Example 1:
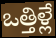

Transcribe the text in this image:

ఒత్తిళ్లే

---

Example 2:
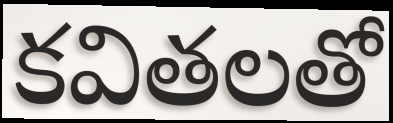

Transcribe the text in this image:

కవితలతో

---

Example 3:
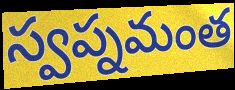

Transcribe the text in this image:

స్వప్నమంత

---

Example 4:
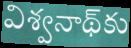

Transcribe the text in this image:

విశ్వనాథ్‌కు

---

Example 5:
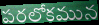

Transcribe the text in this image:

పరలోకమున